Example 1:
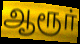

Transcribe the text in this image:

ஆரூர்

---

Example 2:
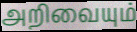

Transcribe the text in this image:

அறிவையும்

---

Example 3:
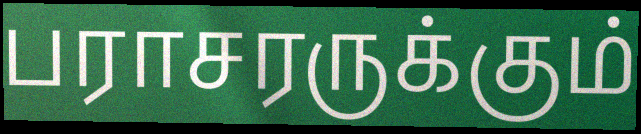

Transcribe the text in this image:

பராசரருக்கும்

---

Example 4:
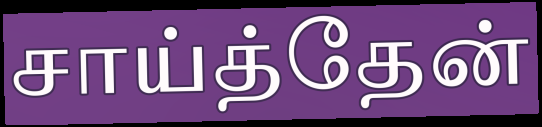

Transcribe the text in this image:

சாய்த்தேன்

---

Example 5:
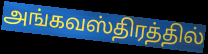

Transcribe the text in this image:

அங்கவஸ்திரத்தில்